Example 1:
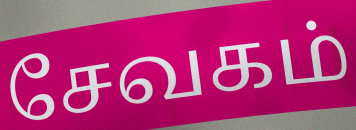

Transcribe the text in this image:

சேவகம்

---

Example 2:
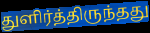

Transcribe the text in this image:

துளிர்த்திருந்தது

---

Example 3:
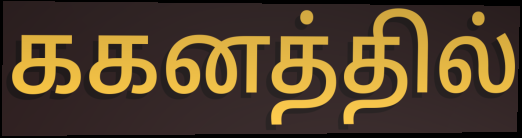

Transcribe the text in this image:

ககனத்தில்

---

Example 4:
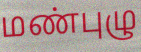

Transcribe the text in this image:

மண்புழு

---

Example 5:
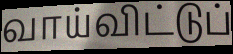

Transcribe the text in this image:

வாய்விட்டுப்